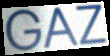
GAZ